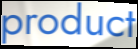
product